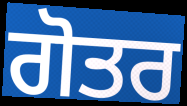
ਗੋਤਰ